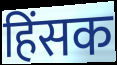
हिंसक